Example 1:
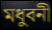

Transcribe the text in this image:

মধুবনী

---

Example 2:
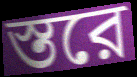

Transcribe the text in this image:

স্তরে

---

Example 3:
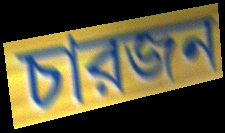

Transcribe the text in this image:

চারজন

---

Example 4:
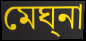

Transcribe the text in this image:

মেঘ্‌না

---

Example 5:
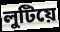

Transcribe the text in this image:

লুটিয়ে